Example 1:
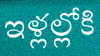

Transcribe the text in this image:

ఇళ్లల్లోకి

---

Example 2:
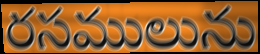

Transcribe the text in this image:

రసములును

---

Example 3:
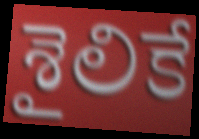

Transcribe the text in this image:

శైలికే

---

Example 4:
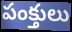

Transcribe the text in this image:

పంక్తులు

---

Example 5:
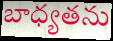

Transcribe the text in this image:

బాధ్యతను